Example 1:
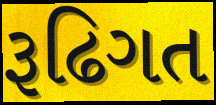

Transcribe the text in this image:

રૂઢિગત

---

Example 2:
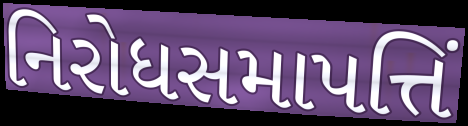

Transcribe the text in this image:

નિરોધસમાપત્તિં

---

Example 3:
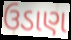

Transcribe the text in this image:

ઉડાણ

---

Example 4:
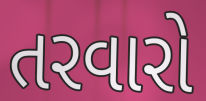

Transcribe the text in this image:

તરવારો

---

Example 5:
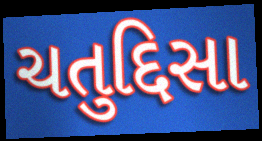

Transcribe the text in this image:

ચતુદ્દિસા